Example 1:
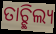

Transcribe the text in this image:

ତାଚ୍ଛିଲ୍ୟ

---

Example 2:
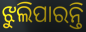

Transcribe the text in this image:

ଝୁଲିପାରନ୍ତି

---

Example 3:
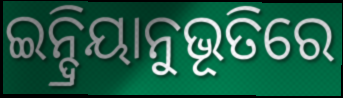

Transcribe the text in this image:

ଇନ୍ଦ୍ରିୟାନୁଭୂତିରେ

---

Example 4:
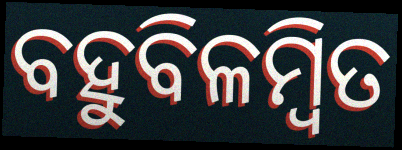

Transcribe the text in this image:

ବହୁବିଳମ୍ବିତ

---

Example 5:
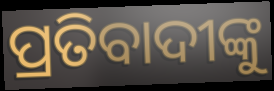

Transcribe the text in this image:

ପ୍ରତିବାଦୀଙ୍କୁ